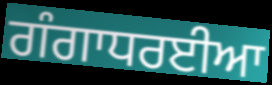
ਗੰਗਾਧਰਈਆ